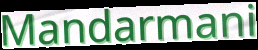
Mandarmani